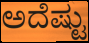
ಅದೆಷ್ಟು